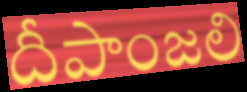
దీపాంజలి